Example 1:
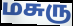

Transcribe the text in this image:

மசுரு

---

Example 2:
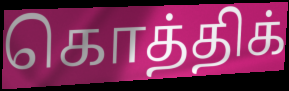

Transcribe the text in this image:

கொத்திக்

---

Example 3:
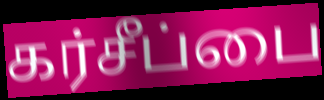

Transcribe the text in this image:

கர்சீப்பை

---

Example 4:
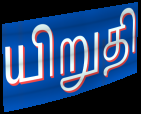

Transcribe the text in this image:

யிறுதி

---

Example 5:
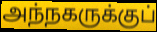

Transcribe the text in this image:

அந்நகருக்குப்